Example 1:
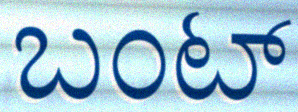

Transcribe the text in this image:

ಬಂಟ್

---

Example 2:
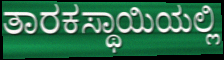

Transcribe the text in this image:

ತಾರಕಸ್ಥಾಯಿಯಲ್ಲಿ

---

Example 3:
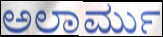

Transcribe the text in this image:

ಅಲಾರ್ಮು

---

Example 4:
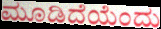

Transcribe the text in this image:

ಮೂಡಿದೆಯೆಂದು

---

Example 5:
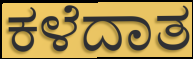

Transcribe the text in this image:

ಕಳೆದಾತ